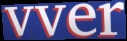
vver